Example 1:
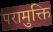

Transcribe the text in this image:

परामुक्ति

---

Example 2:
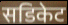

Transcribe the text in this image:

सडिकेट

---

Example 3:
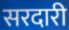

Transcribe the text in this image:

सरदारी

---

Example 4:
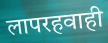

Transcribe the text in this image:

लापरहवाही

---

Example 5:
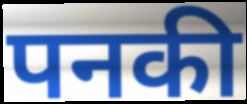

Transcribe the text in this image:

पनकी